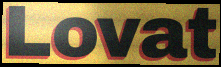
Lovat